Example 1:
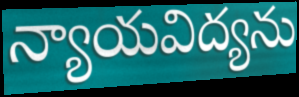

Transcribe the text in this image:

న్యాయవిద్యను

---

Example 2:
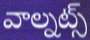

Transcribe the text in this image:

వాల్నట్స్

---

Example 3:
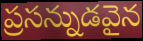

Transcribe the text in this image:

ప్రసన్నుడవైన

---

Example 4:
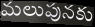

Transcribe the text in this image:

మలుపునకు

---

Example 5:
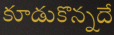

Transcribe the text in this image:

కూడుకొన్నదే